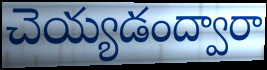
చెయ్యడంద్వారా